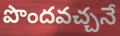
పొందవచ్చనే